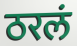
ठरलं